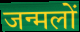
जन्मलों